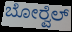
ಬೋರ್‍ವೆಲ್